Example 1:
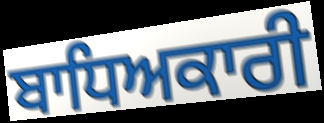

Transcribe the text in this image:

ਬਾਧਿਅਕਾਰੀ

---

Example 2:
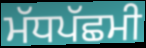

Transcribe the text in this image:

ਮੱਧਪੱਛਮੀ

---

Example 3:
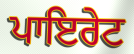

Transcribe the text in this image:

ਪਾਇਰੇਟ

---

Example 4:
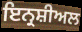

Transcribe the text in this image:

ਇਨ੍ਰਸ਼ੀਅਲ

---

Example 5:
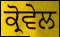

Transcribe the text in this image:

ਕ੍ਰੋਵੇਲ